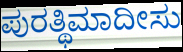
ಪುರತ್ಥಿಮಾದೀಸು